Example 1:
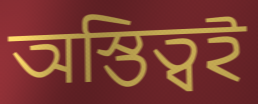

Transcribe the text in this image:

অস্তিত্বই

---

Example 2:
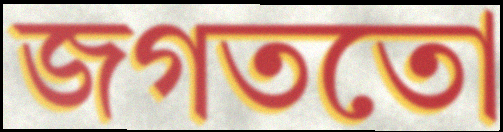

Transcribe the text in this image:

জগততো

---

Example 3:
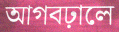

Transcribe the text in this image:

আগবঢ়ালে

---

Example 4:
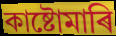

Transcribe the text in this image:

কাষ্টোমাৰি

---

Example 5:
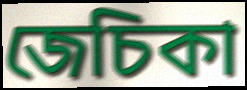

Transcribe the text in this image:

জেচিকা